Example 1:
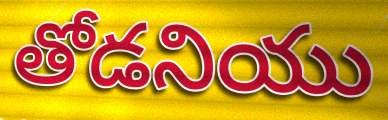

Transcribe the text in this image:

తోడనియు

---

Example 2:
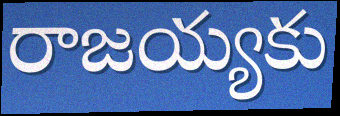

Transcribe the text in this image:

రాజయ్యకు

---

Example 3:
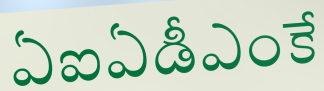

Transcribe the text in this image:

ఏఐఏడీఎంకే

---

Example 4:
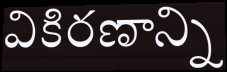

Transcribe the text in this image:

వికిరణాన్ని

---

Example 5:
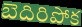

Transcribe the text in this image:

బెదిరిపోక